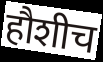
हौशीच